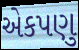
એકપણુ